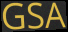
GSA